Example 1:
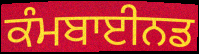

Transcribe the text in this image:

ਕੰਮਬਾਈਨਡ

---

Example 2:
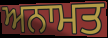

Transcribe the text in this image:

ਅਨਾਮਤ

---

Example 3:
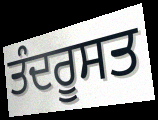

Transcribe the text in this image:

ਤੰਦਰੂਸਤ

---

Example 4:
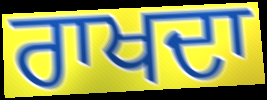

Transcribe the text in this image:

ਰਾਖਦਾ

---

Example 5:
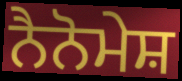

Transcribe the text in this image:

ਨੈਨੋਮੇਸ਼